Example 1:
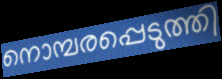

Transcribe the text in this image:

നൊമ്പരപ്പെടുത്തി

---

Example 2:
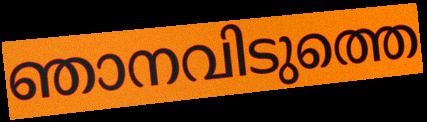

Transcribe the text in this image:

ഞാനവിടുത്തെ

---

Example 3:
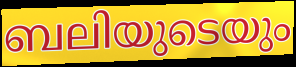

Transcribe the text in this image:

ബലിയുടെയും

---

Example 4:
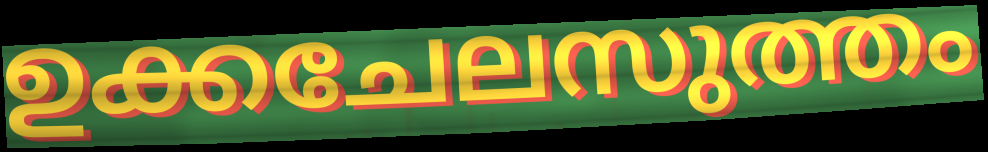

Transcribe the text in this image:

ഉക്കചേലസുത്തം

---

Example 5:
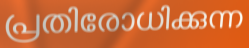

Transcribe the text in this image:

പ്രതിരോധിക്കുന്ന